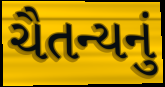
ચૈતન્યનું